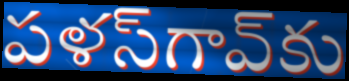
పళస్‌గావ్‌కు